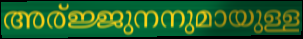
അര്ജ്ജുനനുമായുള്ള